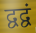
द्वद्वं